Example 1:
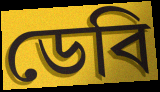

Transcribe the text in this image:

ডেবি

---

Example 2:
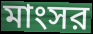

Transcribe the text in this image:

মাংসর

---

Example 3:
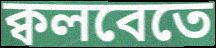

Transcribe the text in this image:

ক্বলবেতে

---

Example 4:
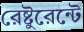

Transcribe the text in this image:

রেষ্টুরেন্টে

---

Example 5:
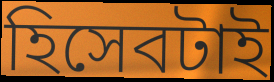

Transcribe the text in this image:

হিসেবটাই